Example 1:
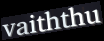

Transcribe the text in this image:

vaiththu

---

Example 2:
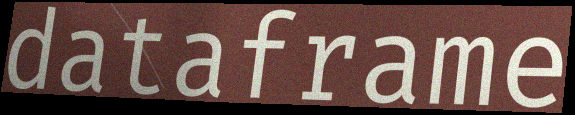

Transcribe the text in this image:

dataframe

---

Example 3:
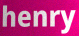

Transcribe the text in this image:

henry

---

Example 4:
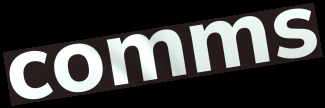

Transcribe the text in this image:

comms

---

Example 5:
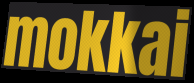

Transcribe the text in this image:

mokkai